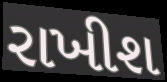
રાખીશ